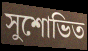
সুশোভিত